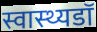
स्वास्थ्यडॉ